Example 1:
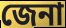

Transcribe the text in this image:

জেনা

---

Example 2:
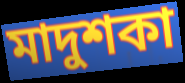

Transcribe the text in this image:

মাদুশকা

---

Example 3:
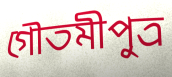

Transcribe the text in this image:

গৌতমীপুত্র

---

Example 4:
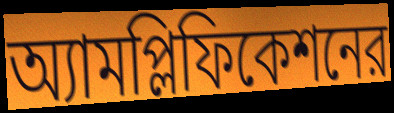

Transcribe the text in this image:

অ্যামপ্লিফিকেশনের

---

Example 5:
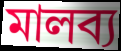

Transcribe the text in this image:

মালব্য